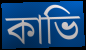
কাভি